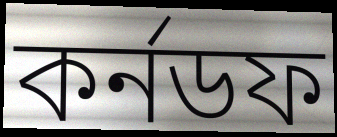
কর্নডফ